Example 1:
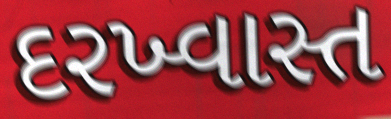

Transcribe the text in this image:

દરખ્વાસ્ત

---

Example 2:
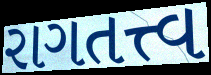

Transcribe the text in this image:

રાગતત્ત્વ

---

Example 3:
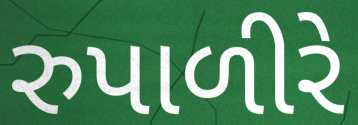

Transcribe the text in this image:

રુપાળીરે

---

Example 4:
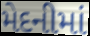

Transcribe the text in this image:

મેદનીમાં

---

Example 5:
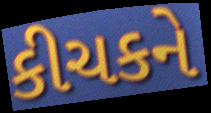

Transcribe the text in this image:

કીચકને